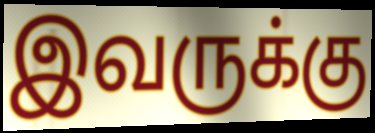
இவருக்கு